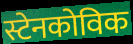
स्टेनकोविक